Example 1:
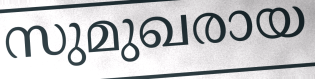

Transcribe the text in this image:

സുമുഖരായ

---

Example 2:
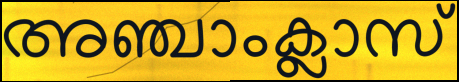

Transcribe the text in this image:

അഞ്ചാംക്ലാസ്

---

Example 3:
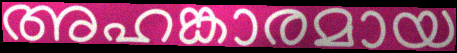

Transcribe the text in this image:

അഹങ്കാരമായ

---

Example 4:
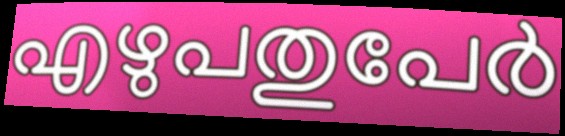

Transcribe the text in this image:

എഴുപതുപേർ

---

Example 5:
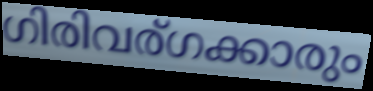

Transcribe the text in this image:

ഗിരിവര്ഗക്കാരും